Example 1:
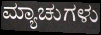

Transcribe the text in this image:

ಮ್ಯಾಚುಗಳು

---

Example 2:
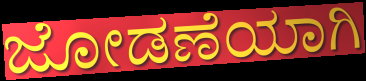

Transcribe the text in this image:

ಜೋಡಣೆಯಾಗಿ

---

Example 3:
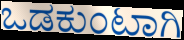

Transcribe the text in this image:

ಒಡಕುಂಟಾಗಿ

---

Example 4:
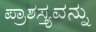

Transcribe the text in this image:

ಪ್ರಾಶಸ್ತ್ಯವನ್ನು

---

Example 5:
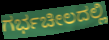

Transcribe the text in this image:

ಗರ್ಭಚೀಲದಲ್ಲಿ